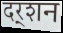
दर्शन